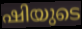
ഷിയുടെ